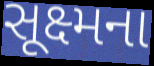
સૂક્ષ્મના